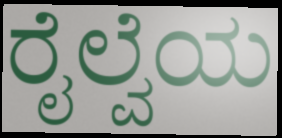
ರೈಲ್ವೆಯ